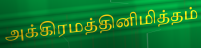
அக்கிரமத்தினிமித்தம்